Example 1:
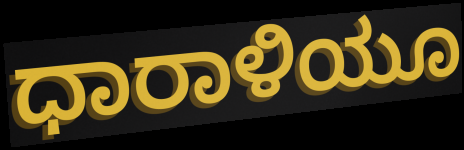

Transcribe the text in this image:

ಧಾರಾಳಿಯೂ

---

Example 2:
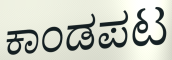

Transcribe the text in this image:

ಕಾಂಡಪಟ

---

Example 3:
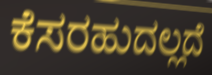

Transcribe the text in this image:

ಕೆಸರಹುದಲ್ಲದೆ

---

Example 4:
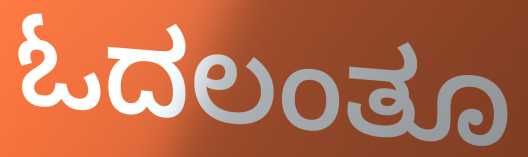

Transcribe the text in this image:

ಓದಲಂತೂ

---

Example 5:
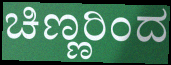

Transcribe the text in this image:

ಚಿಣ್ಣರಿಂದ